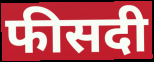
फीसदी